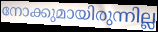
നോക്കുമായിരുന്നില്ല